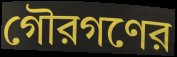
গৌরগণের